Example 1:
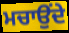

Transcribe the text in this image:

ਮਚਾਉਂਦੇ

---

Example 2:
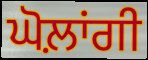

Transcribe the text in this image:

ਘੋਲ਼ਾਂਗੀ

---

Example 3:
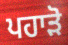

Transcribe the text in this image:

ਪਹਾੜੋ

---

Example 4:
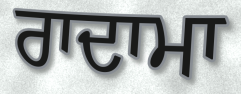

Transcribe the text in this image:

ਰਾਦਾਮਾ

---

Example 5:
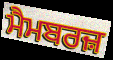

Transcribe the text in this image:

ਮੈਮਬਰਜ਼